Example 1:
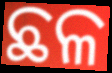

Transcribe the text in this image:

ଛଳ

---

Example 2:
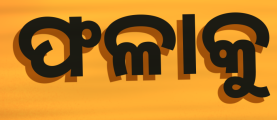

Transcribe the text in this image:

ଫଳାକୁ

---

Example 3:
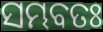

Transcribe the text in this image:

ସମ୍ଭବତଃ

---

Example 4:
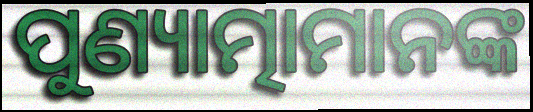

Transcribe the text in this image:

ପୁଣ୍ୟାତ୍ମାମାନଙ୍କ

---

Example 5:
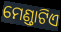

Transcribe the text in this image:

ମେଣ୍ଡାଟିଏ